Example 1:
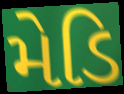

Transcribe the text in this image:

મેડિ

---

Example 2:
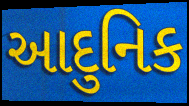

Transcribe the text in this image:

આદુનિક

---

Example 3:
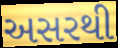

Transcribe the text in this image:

અસરથી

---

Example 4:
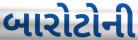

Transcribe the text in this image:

બારોટોની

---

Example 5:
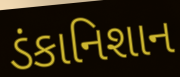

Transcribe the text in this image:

ડંકાનિશાન